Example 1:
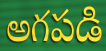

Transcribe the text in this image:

అగపడి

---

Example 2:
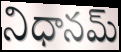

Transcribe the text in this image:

నిధానమ్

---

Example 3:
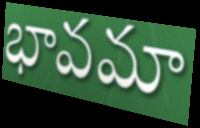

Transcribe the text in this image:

భావమా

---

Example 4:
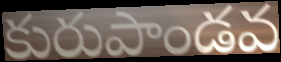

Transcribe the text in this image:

కురుపాండవ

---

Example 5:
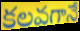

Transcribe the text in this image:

కలవగానే